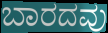
ಬಾರದವು